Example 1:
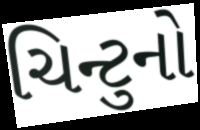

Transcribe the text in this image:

ચિન્ટુનો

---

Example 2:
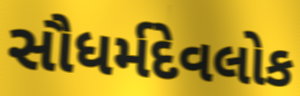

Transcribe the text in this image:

સૌધર્મદેવલોક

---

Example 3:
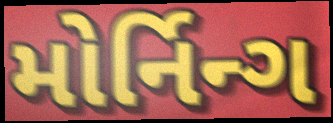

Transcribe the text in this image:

મોર્નિન્ગ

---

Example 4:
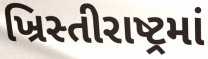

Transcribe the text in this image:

ખ્રિસ્તીરાષ્ટ્રમાં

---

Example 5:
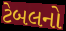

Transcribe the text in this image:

ટેબલનો